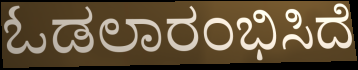
ಓಡಲಾರಂಭಿಸಿದೆ